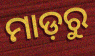
ମାଡ଼ରୁ